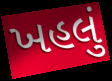
ખહલું